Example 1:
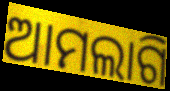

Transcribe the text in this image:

ଆମଲାଗି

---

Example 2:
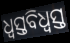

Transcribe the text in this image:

ଧ୍ୱସ୍ତବିଧ୍ୱସ୍ତ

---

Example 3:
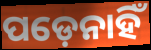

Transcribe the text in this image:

ପଡ଼େନାହିଁ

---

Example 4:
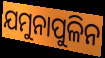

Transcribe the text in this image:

ଯମୁନାପୁଳିନ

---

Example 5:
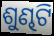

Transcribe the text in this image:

ଶୁଣ୍ଢଟି